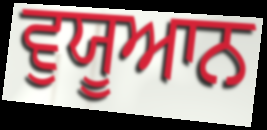
ਵੁਯੂਆਨ